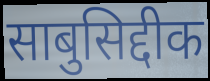
साबुसिद्दीक